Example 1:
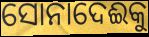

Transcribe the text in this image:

ସୋନାଦେଈକୁ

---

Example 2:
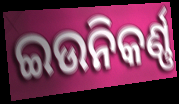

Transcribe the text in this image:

ଇଉନିକର୍ଣ୍ଣ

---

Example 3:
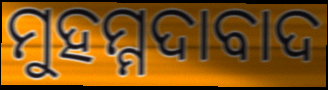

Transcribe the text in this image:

ମୁହମ୍ମଦାବାଦ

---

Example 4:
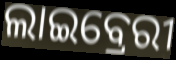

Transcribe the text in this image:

ଲାଇବ୍ରେରୀ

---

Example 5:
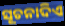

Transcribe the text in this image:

ସୂଚନାଦିଏ